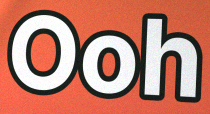
Ooh